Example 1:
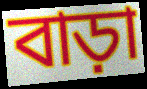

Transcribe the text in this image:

বাড়া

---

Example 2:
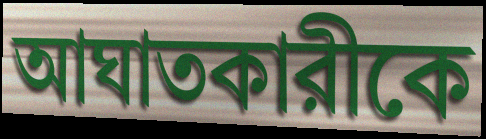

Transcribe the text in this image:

আঘাতকারীকে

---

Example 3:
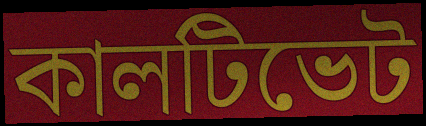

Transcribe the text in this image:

কালটিভেট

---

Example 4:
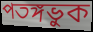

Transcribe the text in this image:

পতঙ্গভুক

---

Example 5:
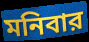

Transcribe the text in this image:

মনিবার